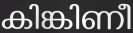
കിങ്കിണീ